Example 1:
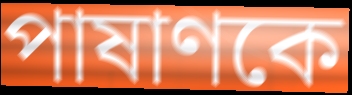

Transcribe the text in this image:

পাষাণকে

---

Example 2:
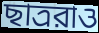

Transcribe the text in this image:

ছাত্ররাও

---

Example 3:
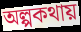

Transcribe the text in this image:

অল্পকথায়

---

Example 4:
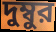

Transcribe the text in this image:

দুম্বুর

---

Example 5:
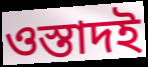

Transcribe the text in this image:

ওস্তাদই